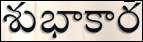
శుభాకార